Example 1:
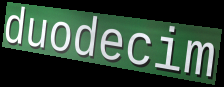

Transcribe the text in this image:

duodecim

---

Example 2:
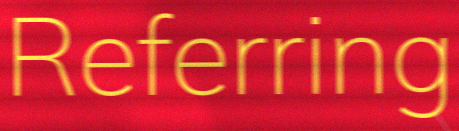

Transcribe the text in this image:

Referring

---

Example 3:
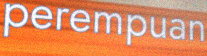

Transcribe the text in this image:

perempuan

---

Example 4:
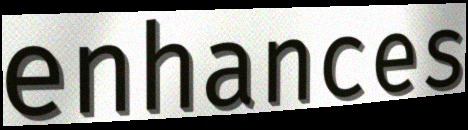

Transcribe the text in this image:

enhances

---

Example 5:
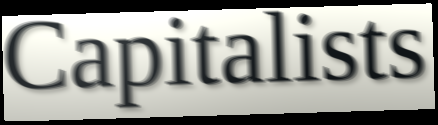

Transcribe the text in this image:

Capitalists